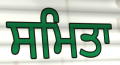
ਸਮਿਤਾ